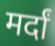
मर्दां